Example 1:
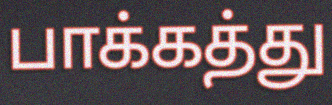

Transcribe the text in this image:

பாக்கத்து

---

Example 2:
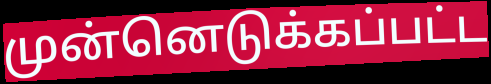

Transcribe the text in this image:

முன்னெடுக்கப்பட்ட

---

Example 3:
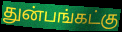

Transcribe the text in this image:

துன்பங்கட்கு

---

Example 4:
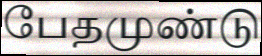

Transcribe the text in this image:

பேதமுண்டு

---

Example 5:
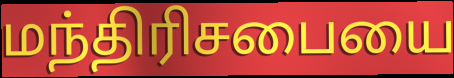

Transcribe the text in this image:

மந்திரிசபையை